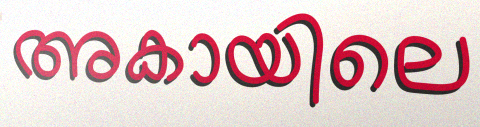
അകായിലെ